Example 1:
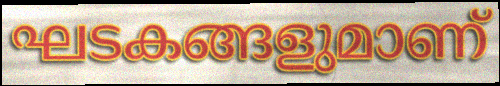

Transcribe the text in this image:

ഘടകങ്ങളുമാണ്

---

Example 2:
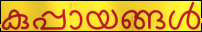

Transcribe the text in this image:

കുപ്പായങ്ങൾ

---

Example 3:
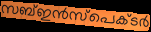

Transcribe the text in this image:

സബ്ഇൻസ്പെക്ടർ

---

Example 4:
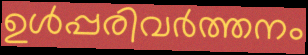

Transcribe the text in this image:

ഉൾപ്പരിവർത്തനം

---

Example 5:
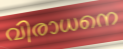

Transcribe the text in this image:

വിരാധനെ